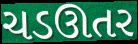
ચડઊતર